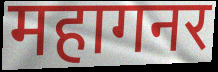
महागनर